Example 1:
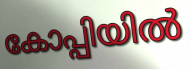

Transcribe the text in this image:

കോപ്പിയിൽ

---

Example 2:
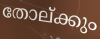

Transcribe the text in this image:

തോല്ക്കും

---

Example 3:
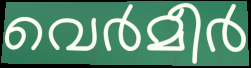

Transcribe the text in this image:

വെർമീർ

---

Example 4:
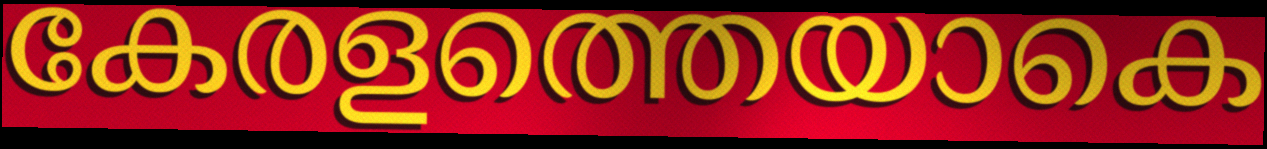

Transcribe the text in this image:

കേരളത്തെയാകെ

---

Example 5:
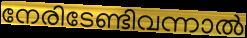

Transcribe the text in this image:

നേരിടേണ്ടിവന്നാൽ